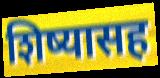
शिष्यासह